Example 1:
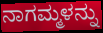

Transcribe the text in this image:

ನಾಗಮ್ಮಳನ್ನು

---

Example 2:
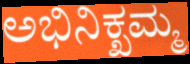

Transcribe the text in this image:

ಅಭಿನಿಕ್ಖಮ್ಮ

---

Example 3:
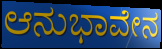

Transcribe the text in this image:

ಆನುಭಾವೇನ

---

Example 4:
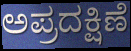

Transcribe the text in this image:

ಅಪ್ರದಕ್ಷಿಣೆ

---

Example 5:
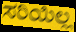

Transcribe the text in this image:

ಸರಿಯಿಲ್ಲ